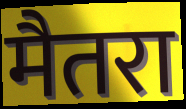
मैतरा